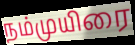
நம்முயிரை